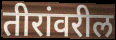
तीरांवरील